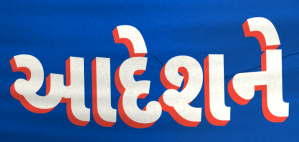
આદેશને